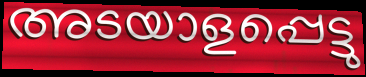
അടയാളപ്പെട്ടു